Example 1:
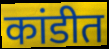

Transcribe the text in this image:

कांडीत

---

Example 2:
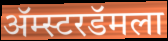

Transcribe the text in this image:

ॲम्स्टरडॅमला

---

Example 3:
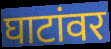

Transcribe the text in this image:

घाटांवर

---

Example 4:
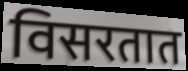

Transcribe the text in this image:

विसरतात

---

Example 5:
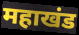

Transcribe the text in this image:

महाखंड